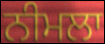
ਨੀਮਲਾ